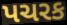
પચરક